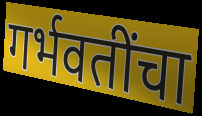
गर्भवतींचा